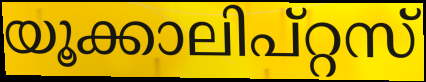
യൂക്കാലിപ്റ്റസ്